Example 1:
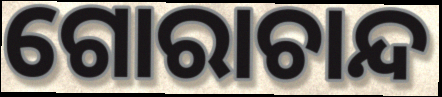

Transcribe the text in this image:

ଗୋରାଚାନ୍ଦ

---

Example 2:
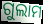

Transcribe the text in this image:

ଗୁଲାମ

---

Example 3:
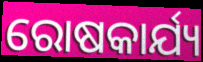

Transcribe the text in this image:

ରୋଷକାର୍ଯ୍ୟ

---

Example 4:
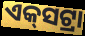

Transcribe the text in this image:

ଏକ୍‍ସଟ୍ରା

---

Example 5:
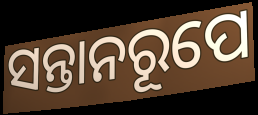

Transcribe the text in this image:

ସନ୍ତାନରୂପେ